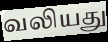
வலியது